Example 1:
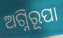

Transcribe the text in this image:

ଅଗ୍ନିରୂପା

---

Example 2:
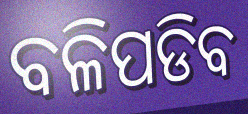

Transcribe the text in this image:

ବଳିପଡିବ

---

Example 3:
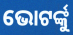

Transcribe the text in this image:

ଭୋଟର୍ଙ୍କୁ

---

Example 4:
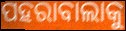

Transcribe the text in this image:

ପହରାବାଲାକୁ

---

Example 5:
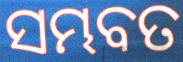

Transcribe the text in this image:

ସମ୍ଭବତ